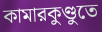
কামারকুণ্ডুতে